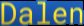
Dalen